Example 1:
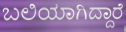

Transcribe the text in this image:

ಬಲಿಯಾಗಿದ್ದಾರೆ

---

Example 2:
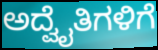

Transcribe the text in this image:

ಅದ್ವೈತಿಗಳಿಗೆ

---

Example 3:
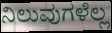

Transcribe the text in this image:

ನಿಲುವುಗಳೆಲ್ಲ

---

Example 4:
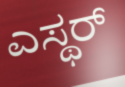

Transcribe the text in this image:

ಎಸ್ಥರ್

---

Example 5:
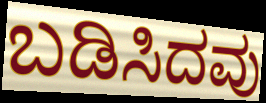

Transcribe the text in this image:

ಬಡಿಸಿದವು